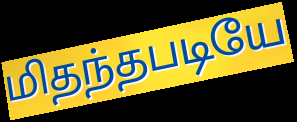
மிதந்தபடியே